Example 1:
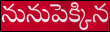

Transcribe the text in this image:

నునుపెక్కిన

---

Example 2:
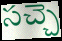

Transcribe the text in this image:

సచ్చె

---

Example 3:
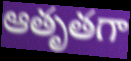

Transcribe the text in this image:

ఆతృతగా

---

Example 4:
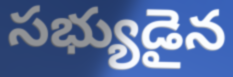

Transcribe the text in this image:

సభ్యుడైన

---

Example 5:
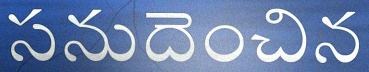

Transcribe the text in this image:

సనుదెంచిన